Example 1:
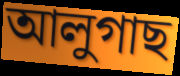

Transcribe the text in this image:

আলুগাছ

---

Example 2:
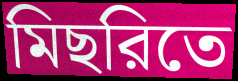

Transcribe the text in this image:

মিছরিতে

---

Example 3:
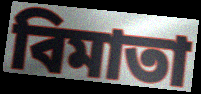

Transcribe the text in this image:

বিমাতা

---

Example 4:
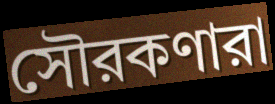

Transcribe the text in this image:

সৌরকণারা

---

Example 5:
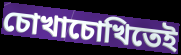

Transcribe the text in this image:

চোখাচোখিতেই